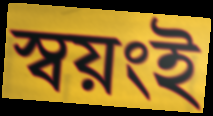
স্বয়ংই